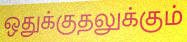
ஒதுக்குதலுக்கும்